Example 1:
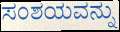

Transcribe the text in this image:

ಸಂಶಯವನ್ನು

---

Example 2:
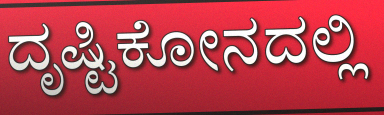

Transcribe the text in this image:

ದೃಷ್ಟಿಕೋನದಲ್ಲಿ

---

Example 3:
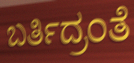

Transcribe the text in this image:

ಬರ್ತಿದ್ರಂತೆ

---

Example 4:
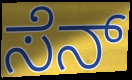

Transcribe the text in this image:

ಸೆನ್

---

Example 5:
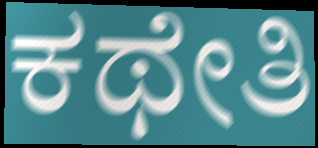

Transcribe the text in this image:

ಕಥೇತಿ